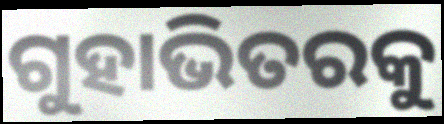
ଗୁହାଭିତରକୁ